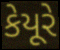
કેયૂરે